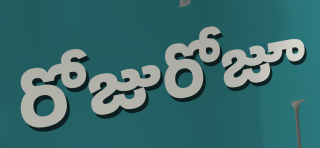
రోజురోజూ